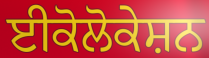
ਈਕੋਲੋਕੇਸ਼ਨ